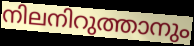
നിലനിറുത്താനും